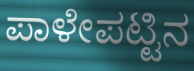
ಪಾಳೇಪಟ್ಟಿನ